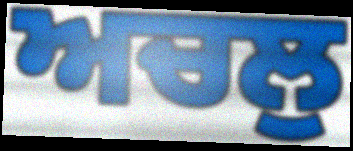
ਅਚਲੁ